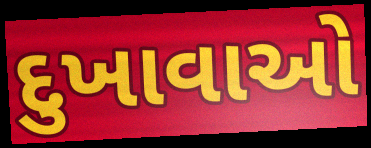
દુખાવાઓ